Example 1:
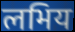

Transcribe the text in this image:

लभिय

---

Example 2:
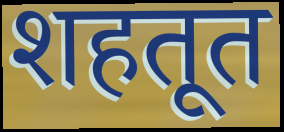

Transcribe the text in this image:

शहतूत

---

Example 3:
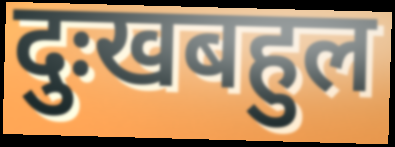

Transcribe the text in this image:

दुःखबहुल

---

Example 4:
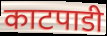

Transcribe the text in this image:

काटपाडी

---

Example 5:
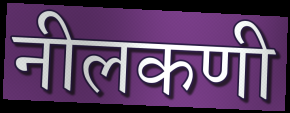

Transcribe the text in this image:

नीलकणी